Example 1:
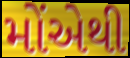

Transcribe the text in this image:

મોંએથી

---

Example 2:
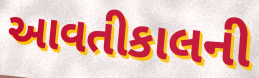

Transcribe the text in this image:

આવતીકાલની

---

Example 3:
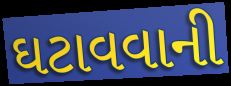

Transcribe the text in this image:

ઘટાવવાની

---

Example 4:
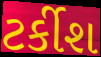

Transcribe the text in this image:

ટર્કીશ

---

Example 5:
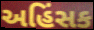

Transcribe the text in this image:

અહિંસક